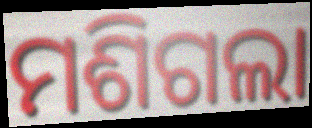
ମଶିଗଲା